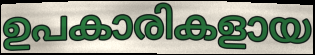
ഉപകാരികളായ